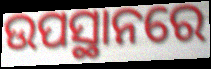
ଉପସ୍ଥାନରେ